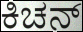
ಕಿಚನ್